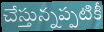
చేస్తున్నప్పటికీ